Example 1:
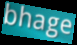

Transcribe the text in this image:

bhage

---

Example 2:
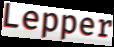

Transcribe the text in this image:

Lepper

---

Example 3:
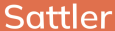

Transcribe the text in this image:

Sattler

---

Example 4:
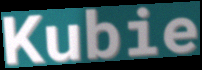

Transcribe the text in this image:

Kubie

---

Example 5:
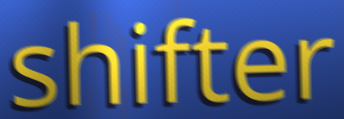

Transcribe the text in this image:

shifter